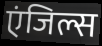
एंजिल्स